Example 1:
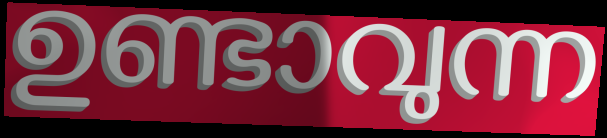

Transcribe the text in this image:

ഉണ്ടാവുന്ന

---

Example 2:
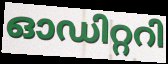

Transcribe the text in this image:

ഓഡിറ്ററി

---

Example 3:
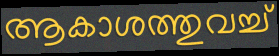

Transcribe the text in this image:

ആകാശത്തുവച്ച്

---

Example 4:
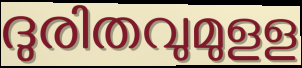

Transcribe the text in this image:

ദുരിതവുമുളള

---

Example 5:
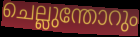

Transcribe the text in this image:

ചെല്ലുന്തോറും